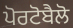
ਪੋਰਟੋਬੈਲੋ